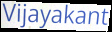
Vijayakant